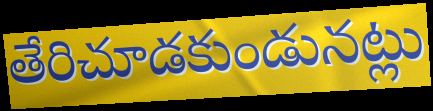
తేరిచూడకుండునట్లు